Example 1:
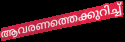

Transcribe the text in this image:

ആവരണത്തെക്കുറിച്ച്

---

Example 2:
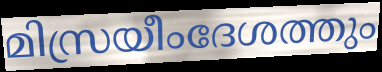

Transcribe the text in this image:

മിസ്രയീംദേശത്തും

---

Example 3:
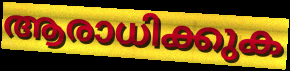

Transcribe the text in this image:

ആരാധിക്കുക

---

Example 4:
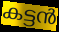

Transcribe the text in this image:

കട്ടൻ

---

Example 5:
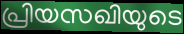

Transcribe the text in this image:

പ്രിയസഖിയുടെ